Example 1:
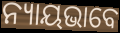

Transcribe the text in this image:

ନ୍ୟାୟଭାବେ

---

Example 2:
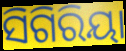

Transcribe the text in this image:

ସିଗିରିୟା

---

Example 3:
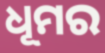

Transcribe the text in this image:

ଧୂମର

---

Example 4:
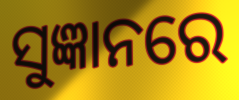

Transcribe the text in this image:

ସୁଜ୍ଞାନରେ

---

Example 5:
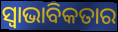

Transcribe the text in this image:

ସ୍ୱାଭାବିକତାର